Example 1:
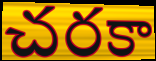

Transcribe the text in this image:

చరకా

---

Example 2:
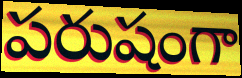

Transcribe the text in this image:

పరుషంగా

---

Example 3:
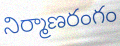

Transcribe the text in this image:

నిర్మాణరంగం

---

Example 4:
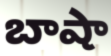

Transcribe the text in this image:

బాషా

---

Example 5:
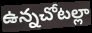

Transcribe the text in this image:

ఉన్నచోటల్లా